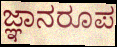
ಜ್ಞಾನರೂಪ